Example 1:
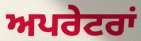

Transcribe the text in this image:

ਅਪਰੇਟਰਾਂ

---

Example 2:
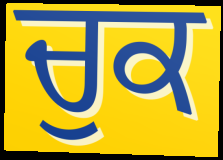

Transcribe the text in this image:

ਚੁਕ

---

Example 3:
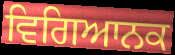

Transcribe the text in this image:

ਵਿਗਿਆਨਕ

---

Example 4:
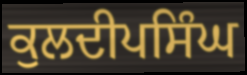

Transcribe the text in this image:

ਕੁਲਦੀਪਸਿੰਘ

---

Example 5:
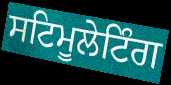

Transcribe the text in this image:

ਸਟਿਮੂਲੇਟਿੰਗ